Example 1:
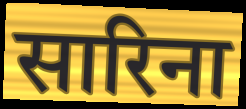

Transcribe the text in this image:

सारिना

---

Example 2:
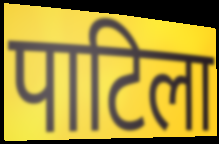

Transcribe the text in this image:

पाटिला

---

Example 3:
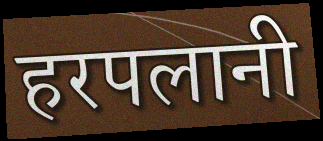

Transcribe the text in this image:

हरपलानी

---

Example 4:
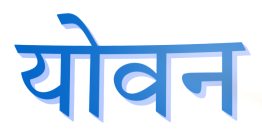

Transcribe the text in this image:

योवन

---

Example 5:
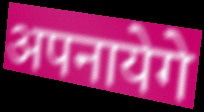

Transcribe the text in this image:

अपनायेगे